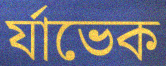
র্যাভেক